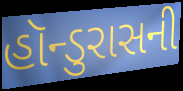
હૉન્ડુરાસની